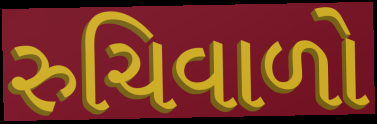
રુચિવાળો